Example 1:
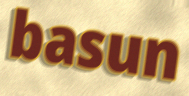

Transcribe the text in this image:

basun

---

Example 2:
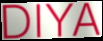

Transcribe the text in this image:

DIYA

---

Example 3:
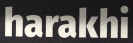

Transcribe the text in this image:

harakhi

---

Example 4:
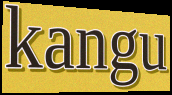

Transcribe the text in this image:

kangu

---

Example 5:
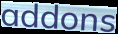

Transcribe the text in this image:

addons